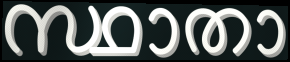
സ്ഥാതാ